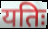
यतिः